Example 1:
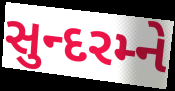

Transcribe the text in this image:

સુન્દરમ્ને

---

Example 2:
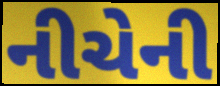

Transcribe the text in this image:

નીચેની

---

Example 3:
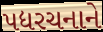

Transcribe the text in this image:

પદ્યરચનાને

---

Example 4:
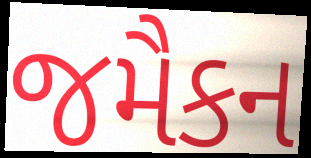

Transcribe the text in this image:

જમૈકન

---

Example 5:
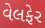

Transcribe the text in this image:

વેલફેર